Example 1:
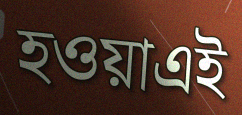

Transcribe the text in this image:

হওয়াএই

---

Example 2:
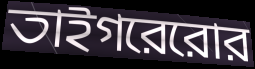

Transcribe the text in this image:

তাইগরেরোর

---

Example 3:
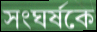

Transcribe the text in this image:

সংঘর্ষকে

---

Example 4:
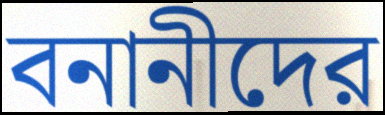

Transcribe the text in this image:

বনানীদের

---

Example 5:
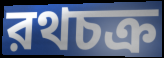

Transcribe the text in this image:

রথচক্র